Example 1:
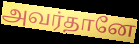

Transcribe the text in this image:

அவர்தானே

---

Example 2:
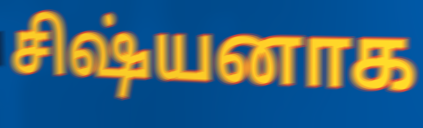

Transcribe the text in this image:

சிஷ்யனாக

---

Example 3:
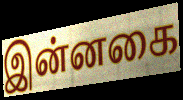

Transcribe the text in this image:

இன்னகை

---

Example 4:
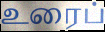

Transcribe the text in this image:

உரைப்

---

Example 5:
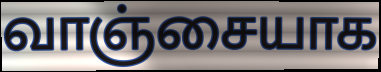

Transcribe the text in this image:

வாஞ்சையாக